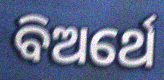
ବିଅର୍ଥେ